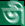
ভী